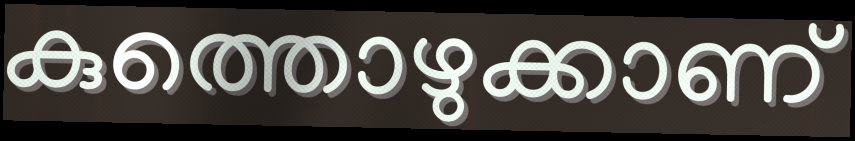
കുത്തൊഴുക്കാണ്